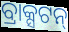
ବ୍ରାକ୍ସଟନ୍